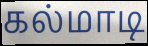
கல்மாடி